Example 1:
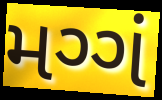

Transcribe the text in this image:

મગ્ગં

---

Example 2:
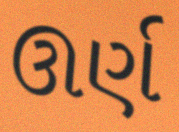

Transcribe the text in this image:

ઊર્ણ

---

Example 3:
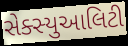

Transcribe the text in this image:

સેક્સ્યુઆલિટી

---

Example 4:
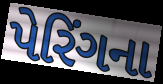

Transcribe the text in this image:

પેરિંગના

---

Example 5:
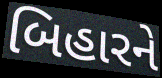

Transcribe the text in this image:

બિહારને